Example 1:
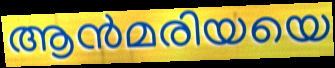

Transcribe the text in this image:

ആൻമരിയയെ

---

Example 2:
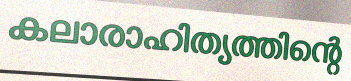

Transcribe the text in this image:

കലാരാഹിത്യത്തിന്റെ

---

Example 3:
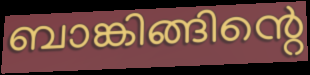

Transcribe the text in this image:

ബാങ്കിങ്ങിന്റെ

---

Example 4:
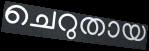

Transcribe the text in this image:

ചെറുതായ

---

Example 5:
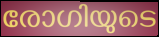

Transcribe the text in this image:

രോഗിയുടെ